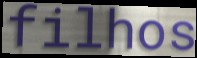
filhos